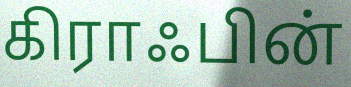
கிராஃபின்